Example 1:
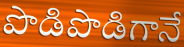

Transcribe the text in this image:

పొడిపొడిగానే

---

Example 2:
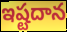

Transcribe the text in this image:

ఇష్టదాన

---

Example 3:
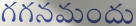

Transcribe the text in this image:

గగనమందు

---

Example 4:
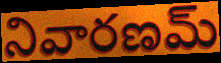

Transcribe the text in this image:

నివారణమ్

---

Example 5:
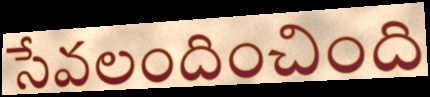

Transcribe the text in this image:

సేవలందించింది